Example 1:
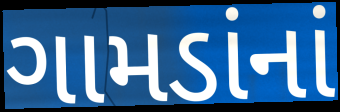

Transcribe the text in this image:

ગામડાંનાં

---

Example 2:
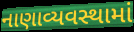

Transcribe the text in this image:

નાણાવ્યવસ્થામાં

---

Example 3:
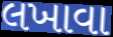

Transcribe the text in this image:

લખાવા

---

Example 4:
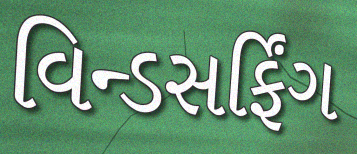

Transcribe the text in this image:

વિન્ડસર્ફિંગ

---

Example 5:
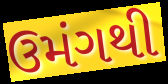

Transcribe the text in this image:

ઉમંગથી